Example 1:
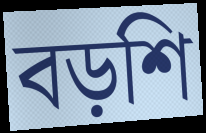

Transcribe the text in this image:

বড়শি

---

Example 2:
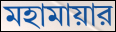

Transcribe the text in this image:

মহামায়ার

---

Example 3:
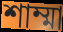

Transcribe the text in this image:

শাম্মা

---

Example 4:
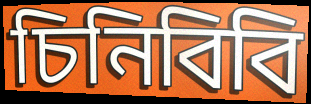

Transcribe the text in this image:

চিনিবিবি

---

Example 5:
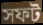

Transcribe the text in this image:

সফট